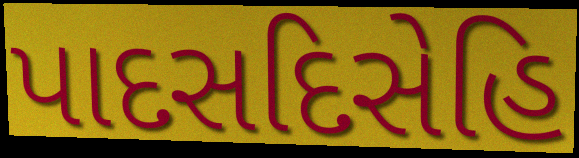
પાદસદિસેહિ